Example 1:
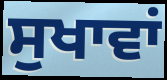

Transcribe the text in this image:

ਸੁਖਾਵਾਂ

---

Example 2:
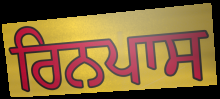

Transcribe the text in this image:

ਰਿਨਪਾਸ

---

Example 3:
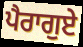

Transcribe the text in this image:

ਪੈਰਾਗੁਏ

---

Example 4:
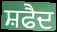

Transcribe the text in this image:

ਸ਼ਫੈਦ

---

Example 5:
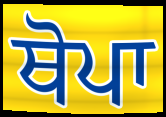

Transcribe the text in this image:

ਥੋਪਾ